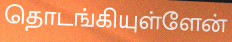
தொடங்கியுள்ளேன்